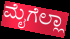
ಮೈಗೆಲ್ಲಾ